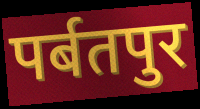
पर्बतपुर